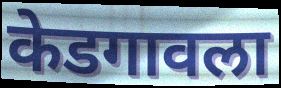
केडगावला